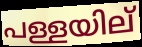
പള്ളയില്